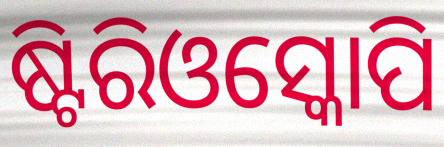
ଷ୍ଟିରିଓସ୍କୋପି